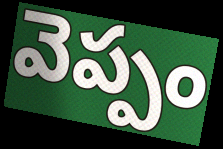
వెప్పం